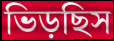
ভিড়ছিস